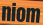
niom